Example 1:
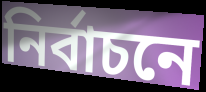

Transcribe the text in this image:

নিৰ্বাচনে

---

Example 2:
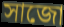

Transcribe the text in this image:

সাজো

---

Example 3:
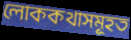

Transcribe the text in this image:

লোককথাসমূহত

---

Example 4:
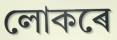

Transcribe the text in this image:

লোকৰে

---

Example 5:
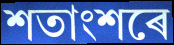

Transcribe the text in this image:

শতাংশৰে